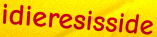
idieresisside